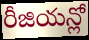
రీజియన్లో